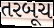
તરબૂચ